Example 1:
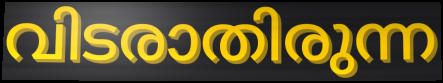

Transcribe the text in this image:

വിടരാതിരുന്ന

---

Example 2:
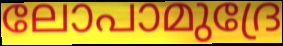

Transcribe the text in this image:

ലോപാമുദ്രേ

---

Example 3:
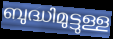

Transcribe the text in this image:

ബുദ്ധിമുട്ടുള്ള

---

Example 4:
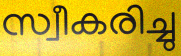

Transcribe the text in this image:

സ്വീകരിച്ചു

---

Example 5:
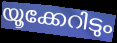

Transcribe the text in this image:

യൂക്കേറിടും